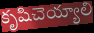
కృషిచెయ్యాలి